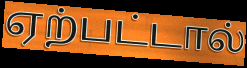
ஏற்பட்டால்